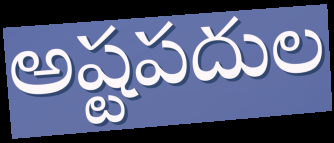
అష్టపదుల